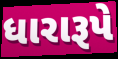
ધારારૂપે